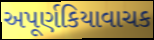
અપૂર્ણકિયાવાચક